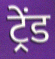
ट्रेंड